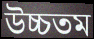
উচ্চতম